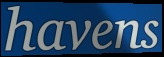
havens